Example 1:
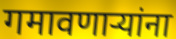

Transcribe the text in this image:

गमावणाऱ्यांना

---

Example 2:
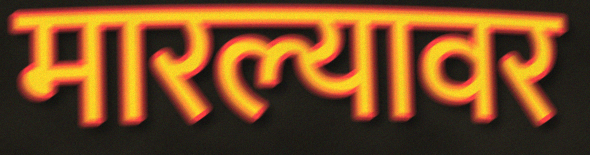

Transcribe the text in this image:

मारल्यावर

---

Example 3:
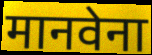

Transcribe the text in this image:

मानवेना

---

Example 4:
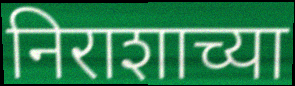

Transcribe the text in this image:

निराशाच्या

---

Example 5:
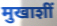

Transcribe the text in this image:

मुखाशीं